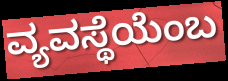
ವ್ಯವಸ್ಥೆಯೆಂಬ